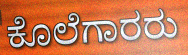
ಕೊಲೆಗಾರರು